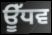
ਊੱਧਵ